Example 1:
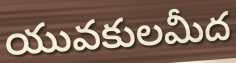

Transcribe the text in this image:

యువకులమీద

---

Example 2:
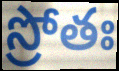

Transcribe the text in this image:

స్రోతః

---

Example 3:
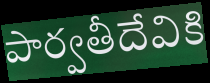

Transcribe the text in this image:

పార్వతీదేవికి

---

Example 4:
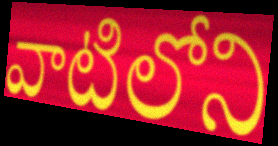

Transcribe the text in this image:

వాటిలోని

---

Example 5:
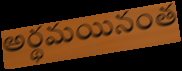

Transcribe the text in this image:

అర్థమయినంత